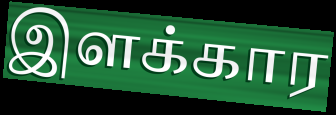
இளக்கார